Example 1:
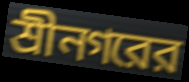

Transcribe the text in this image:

শ্রীনগরের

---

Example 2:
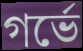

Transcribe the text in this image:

গর্ভে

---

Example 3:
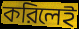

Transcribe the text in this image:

করিলেই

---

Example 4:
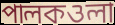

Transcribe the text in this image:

পালকওলা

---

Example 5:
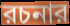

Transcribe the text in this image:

রচনার